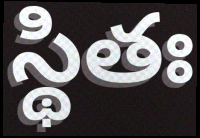
స్థితః